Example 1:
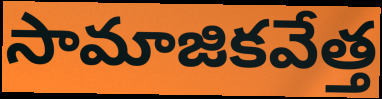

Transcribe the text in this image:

సామాజికవేత్త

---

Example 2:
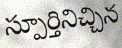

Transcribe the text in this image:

స్పూర్తినిచ్చిన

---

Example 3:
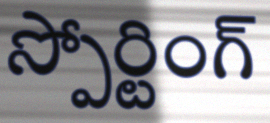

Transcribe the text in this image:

స్పోర్టింగ్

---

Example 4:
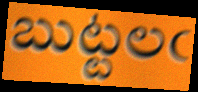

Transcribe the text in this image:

బుట్టలఁ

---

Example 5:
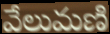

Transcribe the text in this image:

వేలుమణి